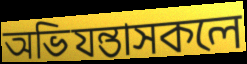
অভিযন্তাসকলে